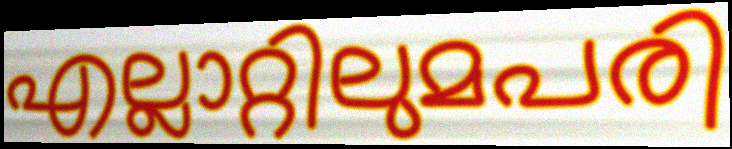
എല്ലാറ്റിലുമപരി